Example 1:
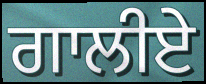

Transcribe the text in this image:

ਗਾਲੀਏ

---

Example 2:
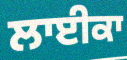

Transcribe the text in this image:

ਲਾਈਕਾ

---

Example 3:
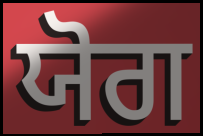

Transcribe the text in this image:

ਯੋਗ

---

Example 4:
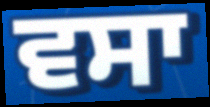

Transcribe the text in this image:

ਵਸਾ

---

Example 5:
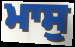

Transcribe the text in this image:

ਮਾਸੁ